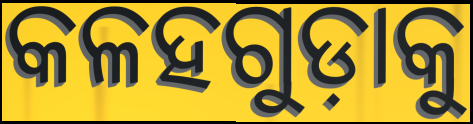
କଳହଗୁଡ଼ାକୁ